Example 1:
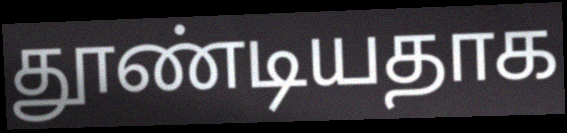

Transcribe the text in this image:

தூண்டியதாக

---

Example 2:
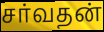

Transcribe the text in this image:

சர்வதன்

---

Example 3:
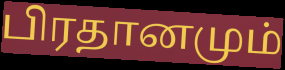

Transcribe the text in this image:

பிரதானமும்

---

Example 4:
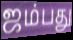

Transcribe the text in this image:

ஜம்பது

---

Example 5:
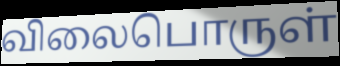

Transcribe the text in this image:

விலைபொருள்